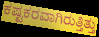
ಕಷ್ಟಕರವಾಗಿರುತ್ತಿತ್ತು